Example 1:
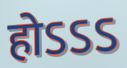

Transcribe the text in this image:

होऽऽऽ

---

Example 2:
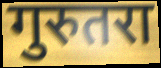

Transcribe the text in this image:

गुरुतरा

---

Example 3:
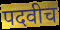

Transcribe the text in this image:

पदवीच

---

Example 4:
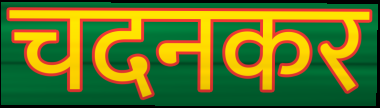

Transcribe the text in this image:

चदनकर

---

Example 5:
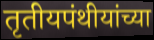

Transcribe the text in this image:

तृतीयपंथीयांच्या